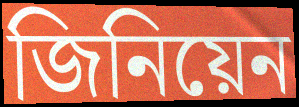
জিনিয়েন